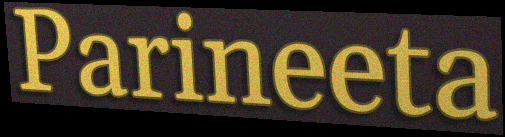
Parineeta